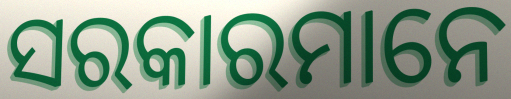
ସରକାରମାନେ